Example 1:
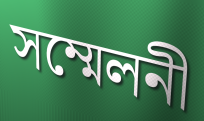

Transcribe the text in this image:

সম্মেলনী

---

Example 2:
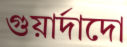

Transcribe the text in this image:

গুয়ার্দাদো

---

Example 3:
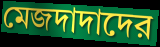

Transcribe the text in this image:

মেজদাদাদের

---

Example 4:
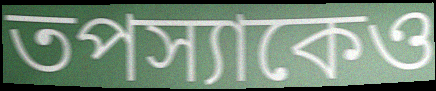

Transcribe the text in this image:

তপস্যাকেও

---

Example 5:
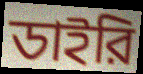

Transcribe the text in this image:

ডাইরি